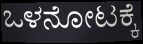
ಒಳನೋಟಕ್ಕೆ